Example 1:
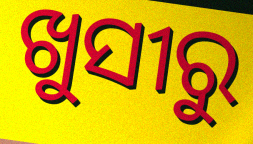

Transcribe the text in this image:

ଖୁସୀରୁ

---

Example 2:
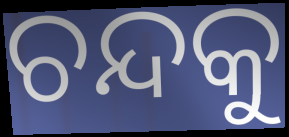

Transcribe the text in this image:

ଚନ୍ଦକୁ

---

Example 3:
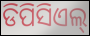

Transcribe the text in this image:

ଡିପିସିଏଲ୍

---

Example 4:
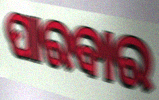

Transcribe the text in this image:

ପାରବାର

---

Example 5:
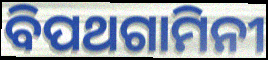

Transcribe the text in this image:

ବିପଥଗାମିନୀ